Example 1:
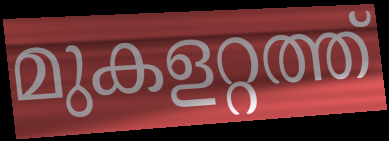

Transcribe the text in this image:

മുകളറ്റത്ത്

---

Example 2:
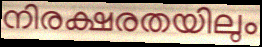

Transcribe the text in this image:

നിരക്ഷരതയിലും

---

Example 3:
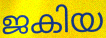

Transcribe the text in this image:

ജകിയ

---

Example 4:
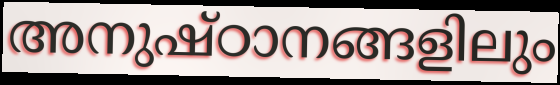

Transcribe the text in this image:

അനുഷ്ഠാനങ്ങളിലും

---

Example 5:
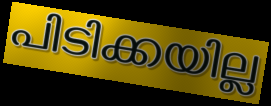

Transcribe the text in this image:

പിടിക്കയില്ല